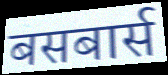
बसबार्स